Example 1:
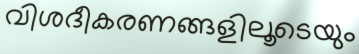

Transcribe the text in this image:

വിശദീകരണങ്ങളിലൂടെയും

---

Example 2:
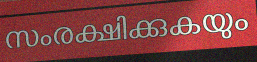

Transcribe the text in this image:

സംരക്ഷിക്കുകയും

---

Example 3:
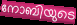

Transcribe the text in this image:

നോബിയുടെ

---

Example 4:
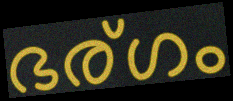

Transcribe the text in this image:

ഭര്ഗം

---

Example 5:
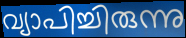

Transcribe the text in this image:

വ്യാപിച്ചിരുന്നു